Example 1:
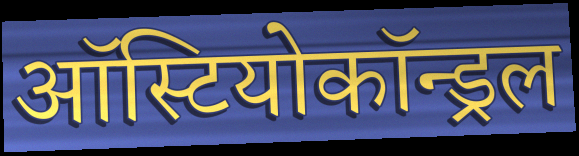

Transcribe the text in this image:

ऑस्टियोकॉन्ड्रल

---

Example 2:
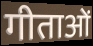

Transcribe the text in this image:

गीताओं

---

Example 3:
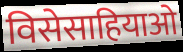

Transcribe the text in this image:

विसेसाहियाओ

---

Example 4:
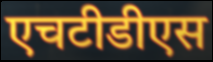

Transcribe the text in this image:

एचटीडीएस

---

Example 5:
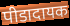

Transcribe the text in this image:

पीडादायक